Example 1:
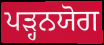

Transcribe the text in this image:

ਪੜ੍ਹਨਯੋਗ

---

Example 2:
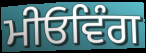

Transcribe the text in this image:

ਮੀਓਵਿੰਗ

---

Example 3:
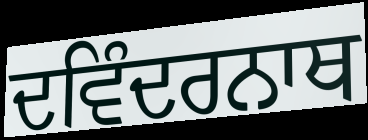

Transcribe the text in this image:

ਦਵਿੰਦਰਨਾਥ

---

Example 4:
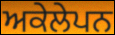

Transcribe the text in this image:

ਅਕੇਲੇਪਨ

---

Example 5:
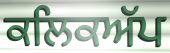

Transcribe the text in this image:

ਕਲਿਕਅੱਪ